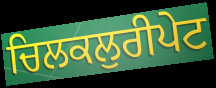
ਚਿਲਕਲੁਰੀਪੇਟ